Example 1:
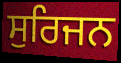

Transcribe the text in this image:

ਸੁਰਿਜਨ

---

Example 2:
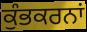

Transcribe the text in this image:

ਕੁੰਭਕਰਨਾਂ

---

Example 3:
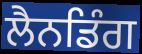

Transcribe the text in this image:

ਲੈਨਡਿੰਗ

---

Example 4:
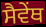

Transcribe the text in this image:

ਸੈਵੇਂਥ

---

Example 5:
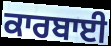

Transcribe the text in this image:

ਕਾਰਬਾਈ